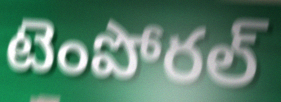
టెంపోరల్